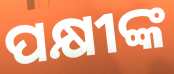
ପକ୍ଷୀଙ୍କ